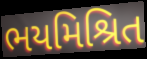
ભયમિશ્રિત